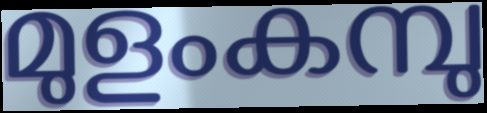
മുളംകമ്പു